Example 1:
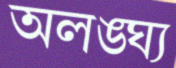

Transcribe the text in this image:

অলঙ্ঘ্য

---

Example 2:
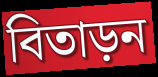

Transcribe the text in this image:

বিতাড়ন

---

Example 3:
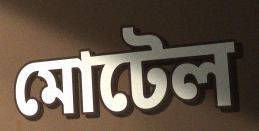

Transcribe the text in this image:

মোটেল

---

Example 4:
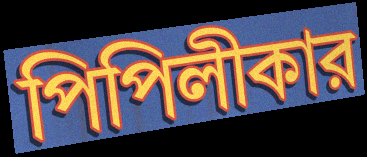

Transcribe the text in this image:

পিপিলীকার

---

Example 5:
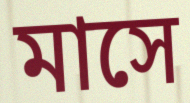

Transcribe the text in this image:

মাসে